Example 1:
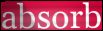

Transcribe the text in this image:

absorb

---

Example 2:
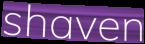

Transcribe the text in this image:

shaven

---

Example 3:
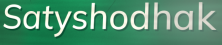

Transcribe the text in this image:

Satyshodhak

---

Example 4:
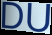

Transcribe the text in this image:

DU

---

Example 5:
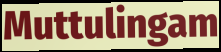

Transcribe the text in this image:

Muttulingam